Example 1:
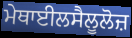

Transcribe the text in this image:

ਮੇਥਾਈਲਸੈਲੂਲੋਜ਼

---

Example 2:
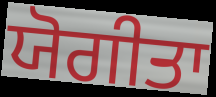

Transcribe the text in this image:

ਯੋਗੀਤਾ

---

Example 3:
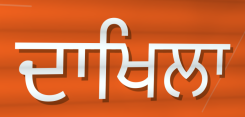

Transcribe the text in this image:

ਦਾਖਿਲਾ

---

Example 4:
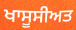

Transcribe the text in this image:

ਖਾਸੂਸੀਅਤ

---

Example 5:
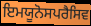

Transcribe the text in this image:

ਇਮਯੂਨੋਸਪਰੈਸਿਵ